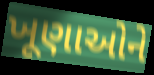
ખૂણાઓને